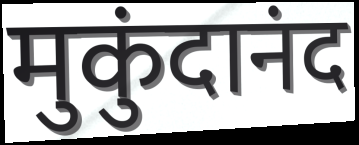
मुकुंदानंद